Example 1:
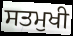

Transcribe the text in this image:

ਸਤਮੁਖੀ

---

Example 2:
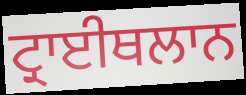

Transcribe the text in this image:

ਟ੍ਰਾਈਥਲਾਨ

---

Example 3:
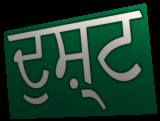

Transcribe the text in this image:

ਦੁਸ਼੍ਟ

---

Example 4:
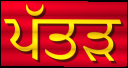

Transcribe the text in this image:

ਪੱਤਡ਼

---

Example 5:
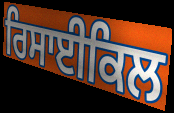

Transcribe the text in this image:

ਰਿਸਾਈਕਿਲ